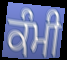
ਕੰਮੀ